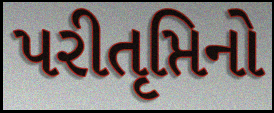
પરીતૃપ્તિનો